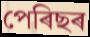
পেৰিছৰ